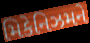
મિકેનિઝમને